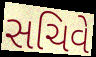
સચિવે